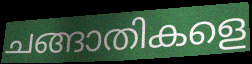
ചങ്ങാതികളെ